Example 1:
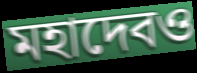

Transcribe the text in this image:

মহাদেবও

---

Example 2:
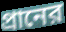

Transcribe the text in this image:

প্রানের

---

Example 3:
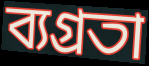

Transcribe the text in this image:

ব্যগ্রতা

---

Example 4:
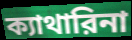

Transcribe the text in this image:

ক্যাথারিনা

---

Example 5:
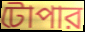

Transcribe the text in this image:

টোপার